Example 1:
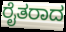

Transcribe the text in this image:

ರೈತರಾದ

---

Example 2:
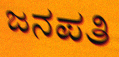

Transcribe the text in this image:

ಜನಪತಿ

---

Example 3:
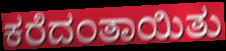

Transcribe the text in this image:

ಕರೆದಂತಾಯಿತು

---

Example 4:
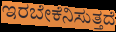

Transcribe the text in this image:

ಇರಬೇಕೆನಿಸುತ್ತದೆ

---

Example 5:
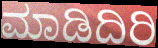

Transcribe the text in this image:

ಮಾಡಿದಿರಿ